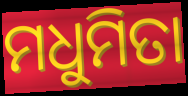
ମଧୁମିତା